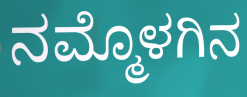
ನಮ್ಮೊಳಗಿನ